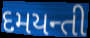
દમયન્તી